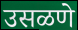
उसळणे